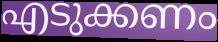
എടുക്കണം